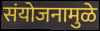
संयोजनामुळे